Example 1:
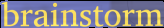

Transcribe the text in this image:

brainstorm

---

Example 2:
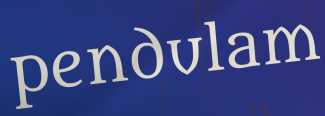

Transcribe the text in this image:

pendulam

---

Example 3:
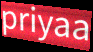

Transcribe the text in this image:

priyaa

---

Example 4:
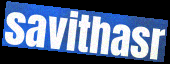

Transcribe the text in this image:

savithasr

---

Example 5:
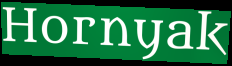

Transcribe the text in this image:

Hornyak